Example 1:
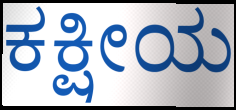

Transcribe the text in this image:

ಕಕ್ಷೀಯ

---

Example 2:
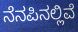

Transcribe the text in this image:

ನೆನಪಿನಲ್ಲಿವೆ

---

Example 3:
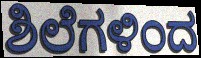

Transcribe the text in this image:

ಶಿಲೆಗಳಿಂದ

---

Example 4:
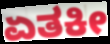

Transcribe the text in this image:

ಏತಕೀ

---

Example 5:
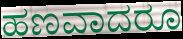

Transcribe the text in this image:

ಹಣವಾದರೂ